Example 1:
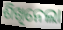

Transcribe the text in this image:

ଶିଖିନେଲା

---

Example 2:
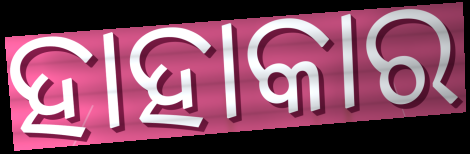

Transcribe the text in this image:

ହାହାକାର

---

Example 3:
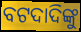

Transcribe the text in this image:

ବଟଦାଦିଙ୍କୁ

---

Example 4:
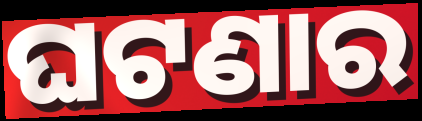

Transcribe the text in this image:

ଘଟଣାର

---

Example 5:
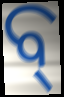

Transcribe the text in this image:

ବ୍